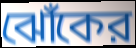
ঝোঁকের